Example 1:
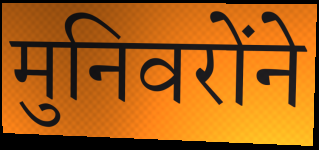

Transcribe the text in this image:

मुनिवरोंने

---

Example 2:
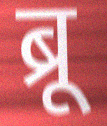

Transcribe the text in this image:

ब्रू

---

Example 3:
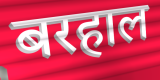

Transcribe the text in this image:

बरहाल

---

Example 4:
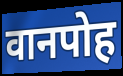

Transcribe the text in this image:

वानपोह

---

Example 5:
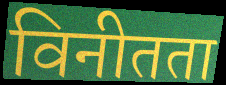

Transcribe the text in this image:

विनीतता